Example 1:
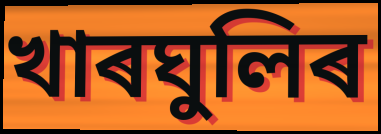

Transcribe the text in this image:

খাৰঘুলিৰ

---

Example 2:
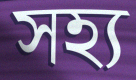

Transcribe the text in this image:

সহ্য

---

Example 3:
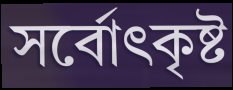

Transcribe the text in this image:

সৰ্বোৎকৃষ্ট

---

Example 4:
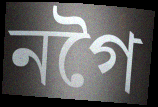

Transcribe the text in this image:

নগৈ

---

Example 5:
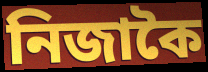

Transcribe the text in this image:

নিজাকৈ